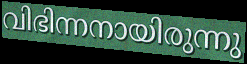
വിഭിന്നനായിരുന്നു